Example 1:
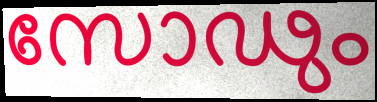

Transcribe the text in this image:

സോഢും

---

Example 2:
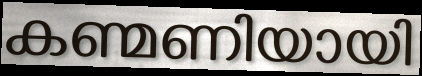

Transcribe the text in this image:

കണ്മണിയായി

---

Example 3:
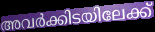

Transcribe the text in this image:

അവർക്കിടയിലേക്ക്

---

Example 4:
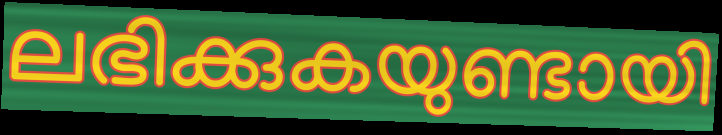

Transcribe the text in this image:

ലഭിക്കുകയുണ്ടായി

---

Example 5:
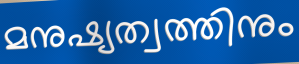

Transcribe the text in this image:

മനുഷ്യത്വത്തിനും